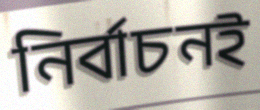
নির্বাচনই